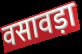
वसावड़ा